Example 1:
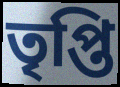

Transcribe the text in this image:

তৃপ্তি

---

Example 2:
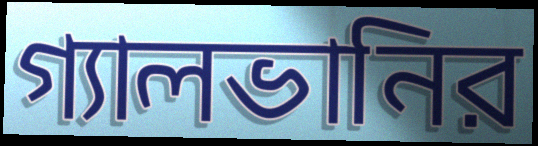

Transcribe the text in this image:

গ্যালভানির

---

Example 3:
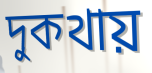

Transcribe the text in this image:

দুকথায়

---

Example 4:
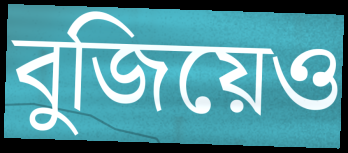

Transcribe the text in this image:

বুজিয়েও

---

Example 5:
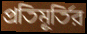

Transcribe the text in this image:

প্রতিমূর্তির